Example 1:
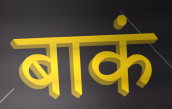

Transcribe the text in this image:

बाकं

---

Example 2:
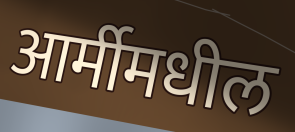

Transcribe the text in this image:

आर्मीमधील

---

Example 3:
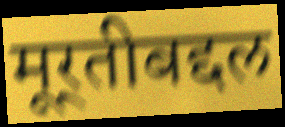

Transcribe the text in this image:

मूर्तीबद्दल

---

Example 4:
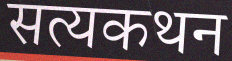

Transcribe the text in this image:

सत्यकथन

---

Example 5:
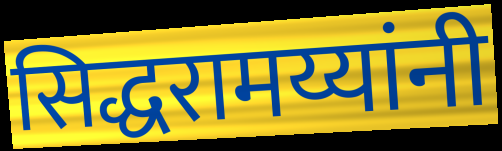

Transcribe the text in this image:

सिद्धरामय्यांनी